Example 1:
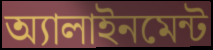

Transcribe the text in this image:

অ্যালাইনমেন্ট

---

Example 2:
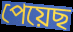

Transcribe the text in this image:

পেয়েছ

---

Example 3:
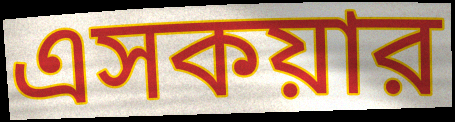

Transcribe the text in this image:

এসকয়ার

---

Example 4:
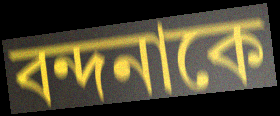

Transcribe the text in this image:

বন্দনাকে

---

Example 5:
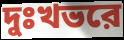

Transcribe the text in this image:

দুঃখভরে